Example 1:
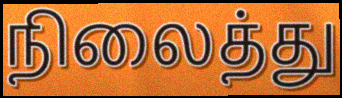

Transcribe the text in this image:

நிலைத்து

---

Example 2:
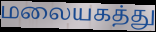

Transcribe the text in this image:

மலையகத்து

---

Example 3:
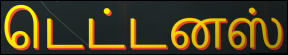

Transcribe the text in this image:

டெட்டனஸ்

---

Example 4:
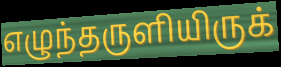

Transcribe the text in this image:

எழுந்தருளியிருக்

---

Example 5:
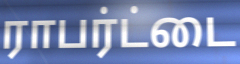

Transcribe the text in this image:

ராபர்ட்டை